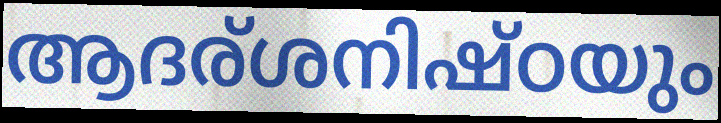
ആദര്ശനിഷ്ഠയും